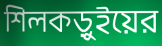
শিলকড়ুইয়ের